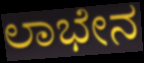
ಲಾಭೇನ